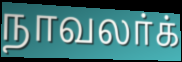
நாவலர்க்